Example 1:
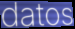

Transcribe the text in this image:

datos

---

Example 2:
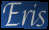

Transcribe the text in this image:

Eris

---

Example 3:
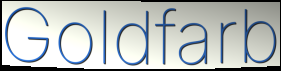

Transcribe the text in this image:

Goldfarb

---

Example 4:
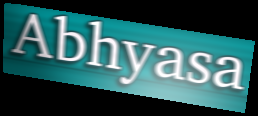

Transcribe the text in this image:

Abhyasa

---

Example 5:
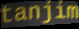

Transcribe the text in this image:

tanjim